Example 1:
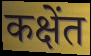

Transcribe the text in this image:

कक्षेंत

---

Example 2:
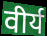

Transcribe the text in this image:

वीर्य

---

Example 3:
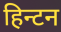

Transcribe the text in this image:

हिन्टन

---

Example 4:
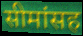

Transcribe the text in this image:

सीमांसह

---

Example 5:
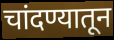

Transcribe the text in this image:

चांदण्यातून